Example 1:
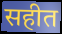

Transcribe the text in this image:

सहीत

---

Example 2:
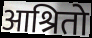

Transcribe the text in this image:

आश्रितो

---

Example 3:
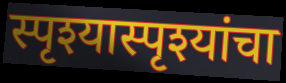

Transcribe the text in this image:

स्पृश्यास्पृश्यांचा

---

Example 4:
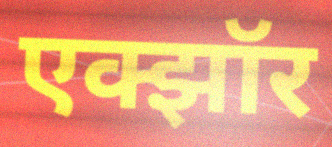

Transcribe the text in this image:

एक्झॉर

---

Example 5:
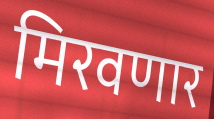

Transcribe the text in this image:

मिरवणार